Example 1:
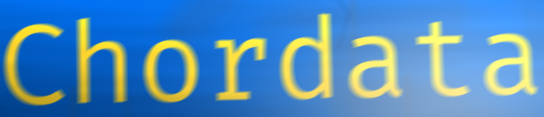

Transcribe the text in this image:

Chordata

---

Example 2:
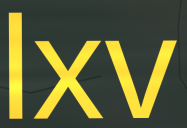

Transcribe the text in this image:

lxv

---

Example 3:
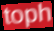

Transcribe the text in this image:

toph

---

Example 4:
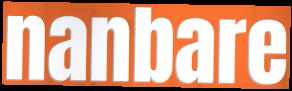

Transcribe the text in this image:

nanbare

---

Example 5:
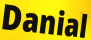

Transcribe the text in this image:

Danial